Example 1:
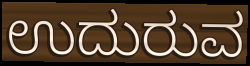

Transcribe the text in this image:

ಉದುರುವ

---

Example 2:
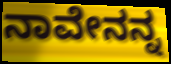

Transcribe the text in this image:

ನಾವೇನನ್ನ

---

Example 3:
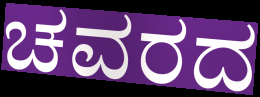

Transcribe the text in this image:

ಚವರದ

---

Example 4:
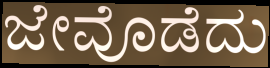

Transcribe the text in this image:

ಜೇವೊಡೆದು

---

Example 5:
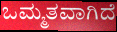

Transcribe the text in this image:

ಒಮ್ಮತವಾಗಿದೆ